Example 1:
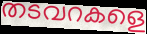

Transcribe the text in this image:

തടവറകളെ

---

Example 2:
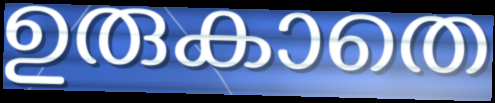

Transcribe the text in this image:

ഉരുകാതെ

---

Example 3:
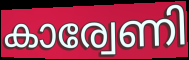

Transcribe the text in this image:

കാര്വേണി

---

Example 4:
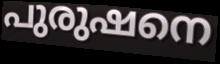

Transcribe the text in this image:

പുരുഷനെ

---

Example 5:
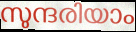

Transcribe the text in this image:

സുന്ദരിയാം